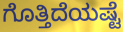
ಗೊತ್ತಿದೆಯಷ್ಟೆ